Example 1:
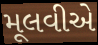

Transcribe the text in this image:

મૂલવીએ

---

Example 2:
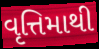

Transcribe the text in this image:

વૃત્તિમાથી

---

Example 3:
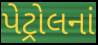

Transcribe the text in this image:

પેટ્રોલનાં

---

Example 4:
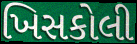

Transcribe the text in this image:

ખિસકોલી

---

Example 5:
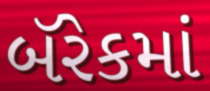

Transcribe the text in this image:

બૅરેકમાં